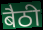
बैठी